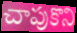
చాపుకొని